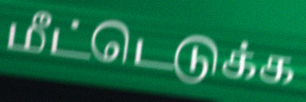
மீட்டெடுக்க